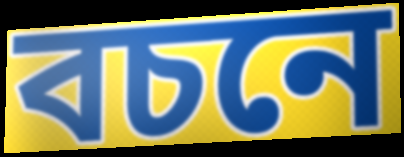
বচনে